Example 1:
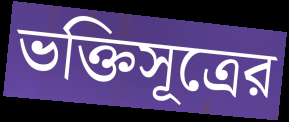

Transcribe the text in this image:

ভক্তিসূত্রের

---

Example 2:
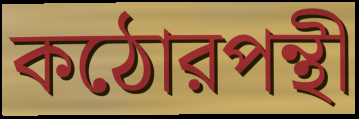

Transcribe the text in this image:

কঠোরপন্থী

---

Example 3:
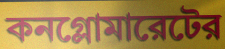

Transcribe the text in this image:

কনগ্লোমারেটের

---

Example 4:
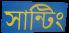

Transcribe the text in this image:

সান্টিং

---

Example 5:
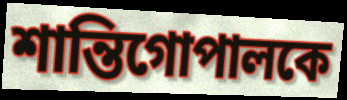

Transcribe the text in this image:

শান্তিগোপালকে